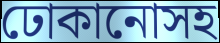
ঢোকানোসহ